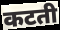
कटती